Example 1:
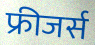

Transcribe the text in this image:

फ्रीजर्स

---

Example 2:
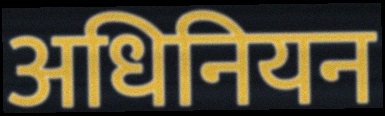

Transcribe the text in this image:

अधिनियन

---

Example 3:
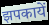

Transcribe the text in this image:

झपकायें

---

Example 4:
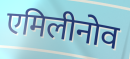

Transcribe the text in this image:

एमिलीनोव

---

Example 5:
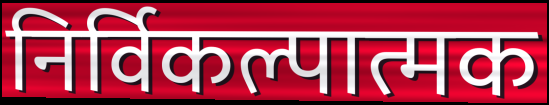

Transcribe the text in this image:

निर्विकल्पात्मक